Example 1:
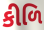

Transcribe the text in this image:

કીળિ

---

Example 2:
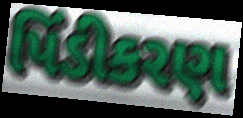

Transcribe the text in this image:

પિંડીકરણ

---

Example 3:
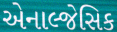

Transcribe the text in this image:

એનાલ્જેસિક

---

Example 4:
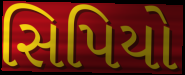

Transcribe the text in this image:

સિપિયો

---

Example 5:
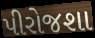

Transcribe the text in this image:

પીરોજશા